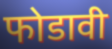
फोडावी